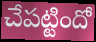
చేపట్టిందో